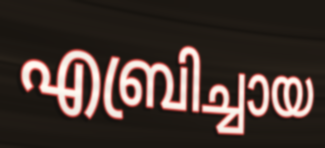
എബ്രിച്ചായ